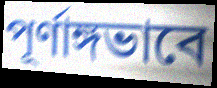
পূর্ণাঙ্গভাবে